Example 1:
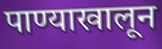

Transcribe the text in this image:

पाण्याखालून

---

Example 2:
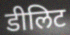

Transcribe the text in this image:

डीलिट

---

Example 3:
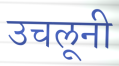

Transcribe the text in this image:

उचलूनी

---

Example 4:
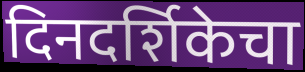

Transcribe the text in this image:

दिनदर्शिकेचा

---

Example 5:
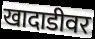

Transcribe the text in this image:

खादाडीवर